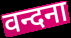
वन्दना